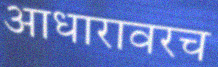
आधारावरच